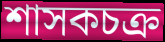
শাসকচক্র